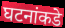
घटनांकडे